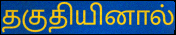
தகுதியினால்